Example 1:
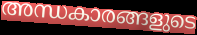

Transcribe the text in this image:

അന്ധകാരങ്ങളുടെ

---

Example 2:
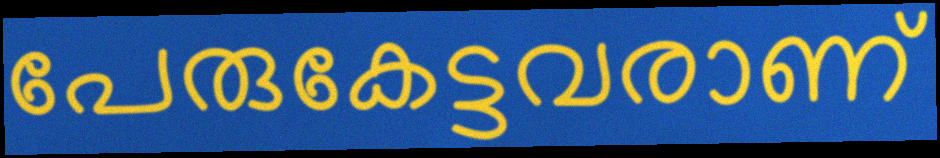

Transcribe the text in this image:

പേരുകേട്ടവരാണ്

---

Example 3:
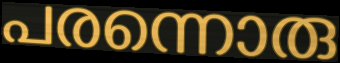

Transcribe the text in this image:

പരന്നൊരു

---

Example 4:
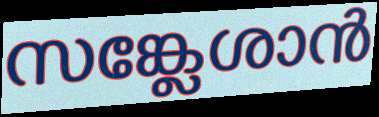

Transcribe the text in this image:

സങ്ക്ലേശാൻ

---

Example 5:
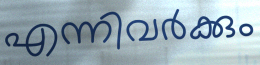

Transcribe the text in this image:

എന്നിവർക്കും